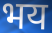
भय